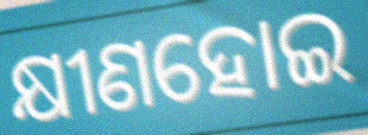
କ୍ଷୀଣହୋଇ